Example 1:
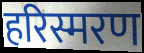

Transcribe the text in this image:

हरिस्मरण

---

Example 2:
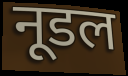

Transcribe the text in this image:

नूडल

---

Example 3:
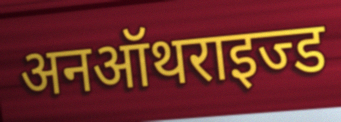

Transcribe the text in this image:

अनऑथराइज्ड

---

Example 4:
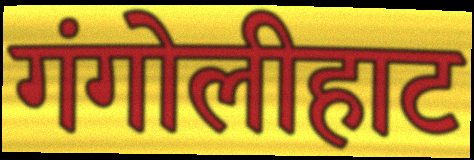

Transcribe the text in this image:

गंगोलीहाट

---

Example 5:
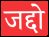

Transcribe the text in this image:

जद्दो